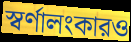
স্বর্ণালংকারও